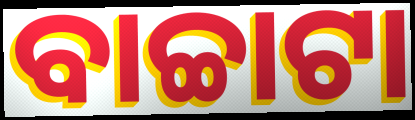
ବାଚ୍ଚାଟା